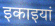
इकाइयां